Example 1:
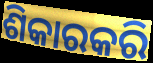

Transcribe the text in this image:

ଶିକାରକରି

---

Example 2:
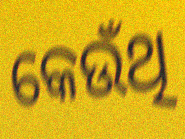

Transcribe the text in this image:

କେଉଁଥି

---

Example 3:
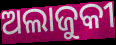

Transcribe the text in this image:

ଅଲାଜୁକୀ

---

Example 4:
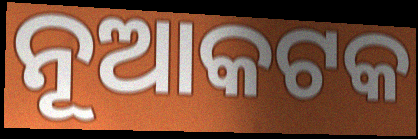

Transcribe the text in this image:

ନୂଆକଟକ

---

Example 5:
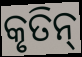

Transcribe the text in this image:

କୃତିନ୍